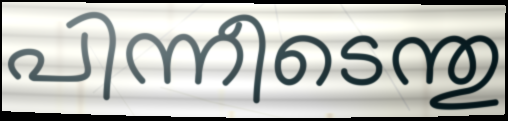
പിന്നീടെന്തു